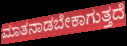
ಮಾತನಾಡಬೇಕಾಗುತ್ತದೆ